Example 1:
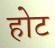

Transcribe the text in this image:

होट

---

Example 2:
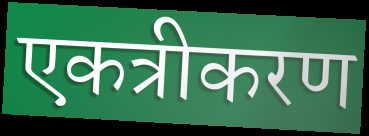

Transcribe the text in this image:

एकत्रीकरण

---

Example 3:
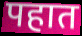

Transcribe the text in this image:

पहात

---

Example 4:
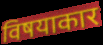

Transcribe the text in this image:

विषयाकार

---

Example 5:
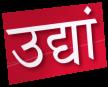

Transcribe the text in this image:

उद्यां